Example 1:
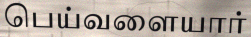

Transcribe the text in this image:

பெய்வளையார்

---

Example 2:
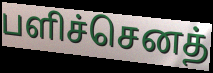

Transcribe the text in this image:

பளிச்செனத்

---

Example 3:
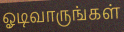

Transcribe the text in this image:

ஓடிவாருங்கள்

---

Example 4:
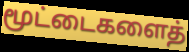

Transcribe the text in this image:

மூட்டைகளைத்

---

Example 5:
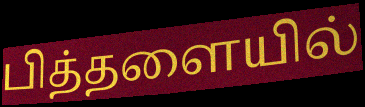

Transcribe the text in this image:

பித்தளையில்